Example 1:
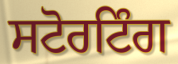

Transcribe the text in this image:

ਸਟੋਰਟਿੰਗ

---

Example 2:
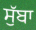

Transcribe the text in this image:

ਸੁੱਬਾ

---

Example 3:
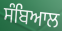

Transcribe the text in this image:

ਸੰਬਿਆਲ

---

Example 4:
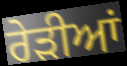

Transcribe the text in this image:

ਰੇੜੀਆਂ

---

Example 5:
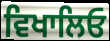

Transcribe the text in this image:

ਵਿਖਾਲਿਓ